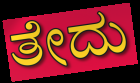
ತೇದು